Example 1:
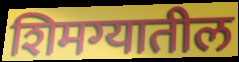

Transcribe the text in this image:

शिमग्यातील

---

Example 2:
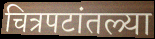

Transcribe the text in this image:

चित्रपटांतल्या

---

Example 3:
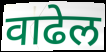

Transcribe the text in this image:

वाढेल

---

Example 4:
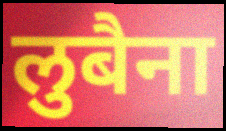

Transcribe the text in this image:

लुबैना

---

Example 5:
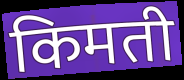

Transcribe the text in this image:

किमती